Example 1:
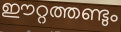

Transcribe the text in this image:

ഈറ്റത്തണ്ടും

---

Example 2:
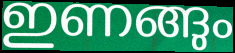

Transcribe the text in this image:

ഇണങ്ങും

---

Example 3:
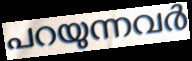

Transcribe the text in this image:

പറയുന്നവർ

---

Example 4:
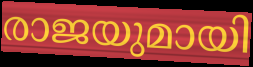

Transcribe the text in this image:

രാജയുമായി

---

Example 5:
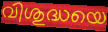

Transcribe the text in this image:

വിശുദ്ധയെ